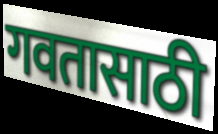
गवतासाठी